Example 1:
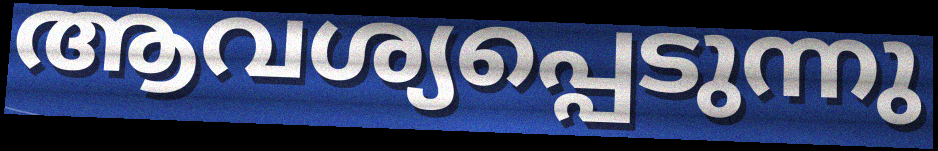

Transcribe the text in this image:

ആവശ്യപ്പെടുന്നു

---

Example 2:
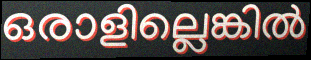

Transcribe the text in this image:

ഒരാളില്ലെങ്കിൽ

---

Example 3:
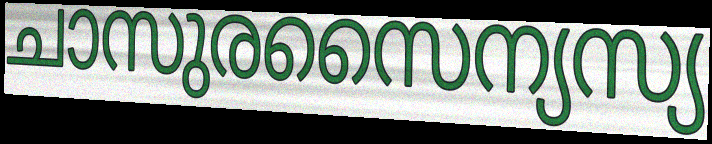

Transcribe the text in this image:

ചാസുരസൈന്യസ്യ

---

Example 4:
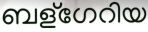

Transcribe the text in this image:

ബള്ഗേറിയ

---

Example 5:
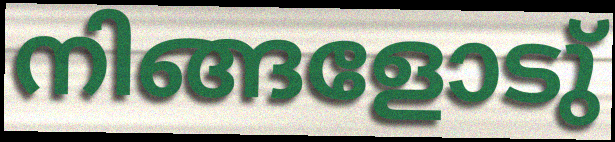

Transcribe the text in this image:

നിങ്ങളോടു്